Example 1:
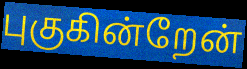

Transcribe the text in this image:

புகுகின்றேன்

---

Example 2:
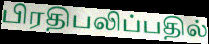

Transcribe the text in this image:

பிரதிபலிப்பதில்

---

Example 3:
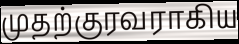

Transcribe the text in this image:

முதற்குரவராகிய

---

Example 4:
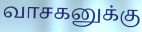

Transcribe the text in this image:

வாசகனுக்கு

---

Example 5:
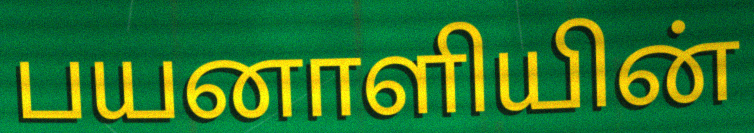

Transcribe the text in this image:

பயனாளியின்